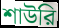
শাউরি